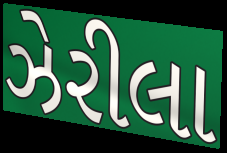
ઝેરીલા